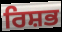
ਰਿਸ਼ਭ